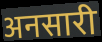
अनसारी